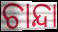
ଚାନ୍ଦା